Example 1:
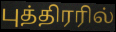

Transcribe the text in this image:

புத்திரரில்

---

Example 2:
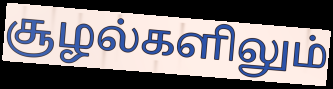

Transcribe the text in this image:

சூழல்களிலும்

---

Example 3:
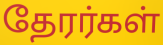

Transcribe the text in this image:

தேரர்கள்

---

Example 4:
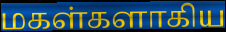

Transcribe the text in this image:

மகள்களாகிய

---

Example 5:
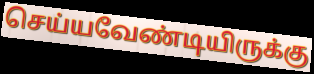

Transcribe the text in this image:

செய்யவேண்டியிருக்கு